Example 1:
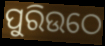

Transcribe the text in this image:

ପୁରିଉଠେ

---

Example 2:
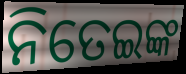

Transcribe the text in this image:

ନିତେଇଙ୍କ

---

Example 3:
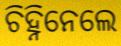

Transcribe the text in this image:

ଚିହ୍ନିନେଲେ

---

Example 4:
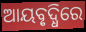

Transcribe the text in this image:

ଆୟବୃଦ୍ଧିରେ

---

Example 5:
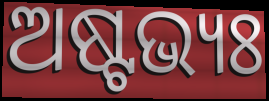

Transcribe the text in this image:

ଅଷ୍ଟଭ୍ୟଃ